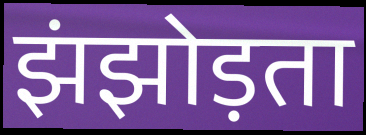
झंझोड़ता